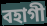
বহাগী